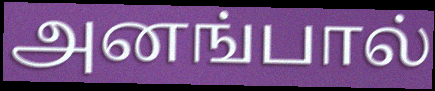
அனங்பால்